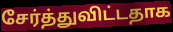
சேர்த்துவிட்டதாக